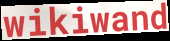
wikiwand